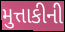
મુત્તાકીની